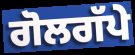
ਗੋਲਗੱਪੇ